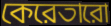
কেরেতারো